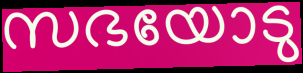
സഭയോടു